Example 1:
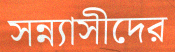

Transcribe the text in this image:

সন্ন্যাসীদের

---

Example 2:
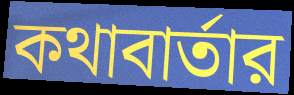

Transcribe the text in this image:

কথাবার্তার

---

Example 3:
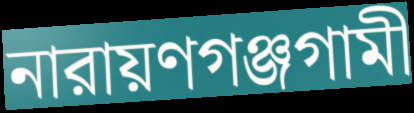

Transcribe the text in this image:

নারায়ণগঞ্জগামী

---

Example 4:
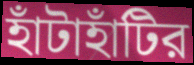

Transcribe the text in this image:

হাঁটাহাঁটির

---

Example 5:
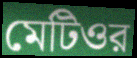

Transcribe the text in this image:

মেটিওর